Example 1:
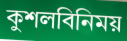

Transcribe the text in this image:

কুশলবিনিময়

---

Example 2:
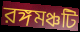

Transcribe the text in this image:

রঙ্গমঞ্চটি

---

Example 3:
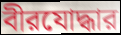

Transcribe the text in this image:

বীরযোদ্ধার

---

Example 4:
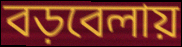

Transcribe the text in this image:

বড়বেলায়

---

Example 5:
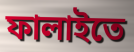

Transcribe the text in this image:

ফালাইতে